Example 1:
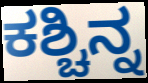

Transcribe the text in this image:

ಕಶ್ಚಿನ್ನ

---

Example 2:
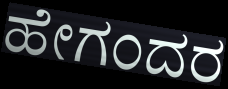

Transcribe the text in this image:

ಹೇಗಂದರ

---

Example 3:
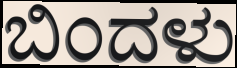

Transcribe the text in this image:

ಬಿಂದಳು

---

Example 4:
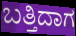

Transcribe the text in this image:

ಬತ್ತಿದಾಗ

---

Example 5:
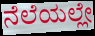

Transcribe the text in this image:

ನೆಲೆಯಲ್ಲೇ